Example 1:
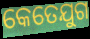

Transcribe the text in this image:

କେତେଯୁଗ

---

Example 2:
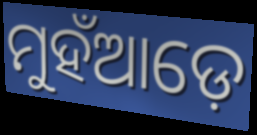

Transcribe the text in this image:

ମୁହଁଆଡ଼େ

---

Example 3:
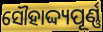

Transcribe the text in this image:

ସୌହାଦ୍ଦ୍ୟପୂର୍ଣ୍ଣ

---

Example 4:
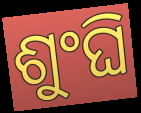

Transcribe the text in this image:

ଶୁଂଘି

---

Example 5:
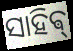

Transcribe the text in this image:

ସାହିଵ୍